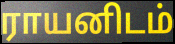
ராயனிடம்